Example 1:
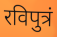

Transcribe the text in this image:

रविपुत्रं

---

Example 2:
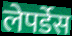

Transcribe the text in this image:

लेपर्डेस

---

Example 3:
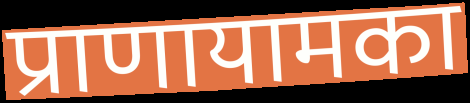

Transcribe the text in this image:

प्राणायामका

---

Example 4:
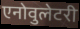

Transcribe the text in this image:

एनोवुलेटरी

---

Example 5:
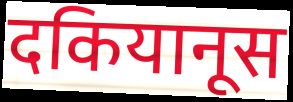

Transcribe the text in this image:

दकियानूस